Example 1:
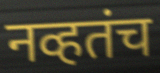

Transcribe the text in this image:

नव्हतंच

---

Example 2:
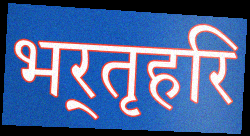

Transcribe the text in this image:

भर्तृहरि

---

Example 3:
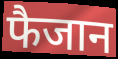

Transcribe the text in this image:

फैजान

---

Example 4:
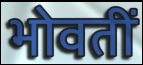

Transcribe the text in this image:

भोवतीं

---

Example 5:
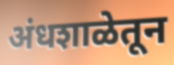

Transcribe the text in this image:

अंधशाळेतून